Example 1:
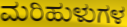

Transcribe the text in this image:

ಮರಿಹುಳುಗಳ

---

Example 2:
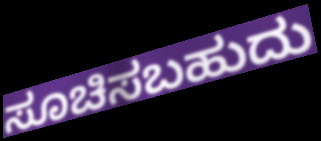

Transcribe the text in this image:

ಸೂಚಿಸಬಹುದು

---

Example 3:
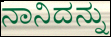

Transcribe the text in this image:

ನಾನಿದನ್ನು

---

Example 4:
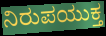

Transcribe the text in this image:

ನಿರುಪಯುಕ್ತ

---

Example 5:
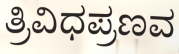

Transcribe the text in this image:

ತ್ರಿವಿಧಪ್ರಣವ